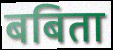
बबिता